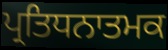
ਪ੍ਰਤਿਧਨਾਤਮਕ